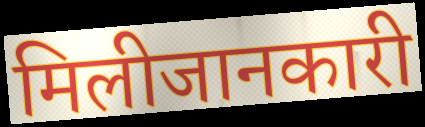
मिलीजानकारी